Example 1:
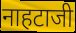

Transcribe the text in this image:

नाहटाजी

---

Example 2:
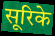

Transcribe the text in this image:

सूरिके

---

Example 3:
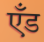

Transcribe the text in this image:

एँड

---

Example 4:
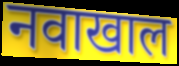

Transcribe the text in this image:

नवाखाल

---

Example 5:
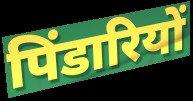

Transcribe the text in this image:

पिंडारियों